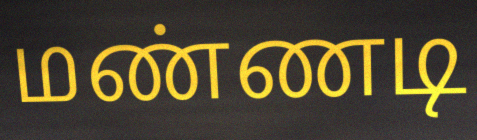
மண்ணடி